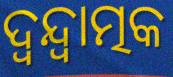
ଦ୍ଵନ୍ଦ୍ଵାତ୍ମକ